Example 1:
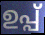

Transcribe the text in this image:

ഉപ്പ്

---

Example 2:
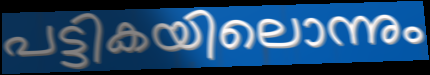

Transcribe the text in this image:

പട്ടികയിലൊന്നും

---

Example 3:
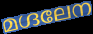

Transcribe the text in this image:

മഗ്ദലേന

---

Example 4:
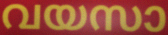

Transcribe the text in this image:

വയസാ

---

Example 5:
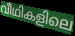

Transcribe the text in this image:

വീഥികളിലെ